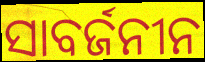
ସାବର୍ଜନୀନ